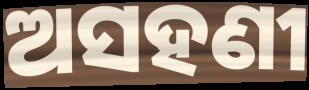
ଅସହଣୀ